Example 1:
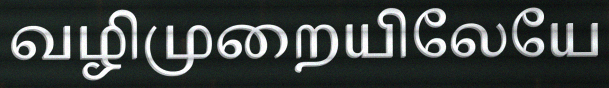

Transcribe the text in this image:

வழிமுறையிலேயே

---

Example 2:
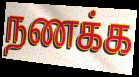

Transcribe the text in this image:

நணக்க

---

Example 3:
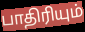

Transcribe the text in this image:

பாதிரியும்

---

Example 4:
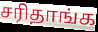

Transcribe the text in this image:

சரிதாங்க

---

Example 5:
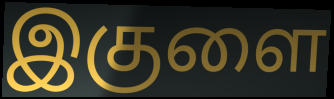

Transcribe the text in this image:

இகுளை